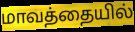
மாவத்தையில்